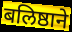
बलिष्ठाने